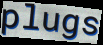
plugs